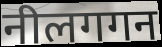
नीलगगन